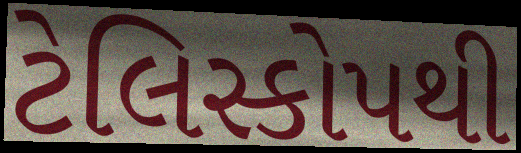
ટેલિસ્કોપથી